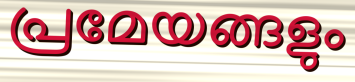
പ്രമേയങ്ങളും